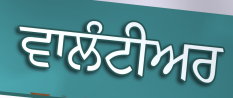
ਵਾਲੰਟੀਅਰ